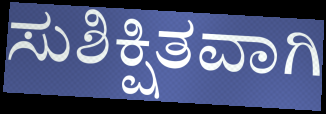
ಸುಶಿಕ್ಷಿತವಾಗಿ